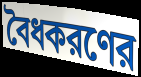
বৈধকরণের